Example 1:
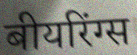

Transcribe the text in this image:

बीयरिंग्स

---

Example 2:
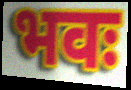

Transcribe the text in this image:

भवः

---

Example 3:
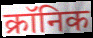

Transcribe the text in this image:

क्रॉनिक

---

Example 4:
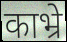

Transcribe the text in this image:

काभ्रे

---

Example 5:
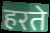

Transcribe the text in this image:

हरते